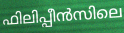
ഫിലിപ്പീൻസിലെ